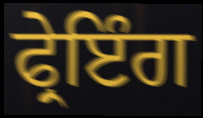
ਫ੍ਰੇਇੰਗ